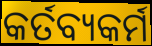
କର୍ତବ୍ଯକର୍ମ